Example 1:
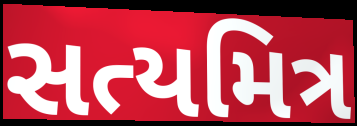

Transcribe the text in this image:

સત્યમિત્ર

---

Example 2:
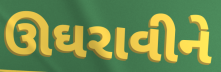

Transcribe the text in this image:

ઊઘરાવીને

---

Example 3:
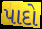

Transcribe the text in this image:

પાદો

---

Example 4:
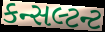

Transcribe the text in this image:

કન્સલ્ટન્ટ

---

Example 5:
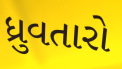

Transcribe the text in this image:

ધ્રુવતારો